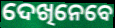
ଦେଖିନେବେ